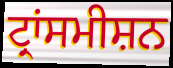
ਟ੍ਰਾਂਸਮੀਸ਼ਨ